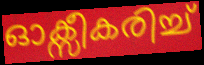
ഓക്സീകരിച്ച്